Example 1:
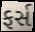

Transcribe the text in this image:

ફર્સ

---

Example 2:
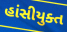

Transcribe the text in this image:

હાંસીયુક્ત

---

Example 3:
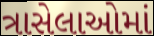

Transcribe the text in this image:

ત્રાસેલાઓમાં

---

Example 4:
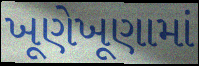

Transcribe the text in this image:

ખૂણેખૂણામાં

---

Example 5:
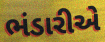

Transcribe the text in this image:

ભંડારીએ